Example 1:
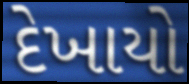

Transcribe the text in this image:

દેખાયો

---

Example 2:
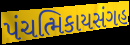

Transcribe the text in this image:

પંચત્મિકાયસંગહ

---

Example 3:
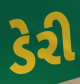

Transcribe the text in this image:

ડેરી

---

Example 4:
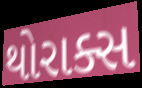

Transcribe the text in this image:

થોરાક્સ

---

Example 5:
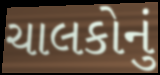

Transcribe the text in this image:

ચાલકોનું